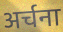
अर्चना